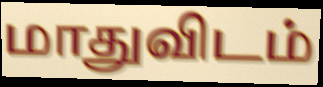
மாதுவிடம்